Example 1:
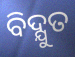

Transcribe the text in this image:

ବିଦ୍ଯୁତ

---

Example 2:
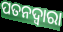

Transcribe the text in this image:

ପତନଦ୍ୱାରା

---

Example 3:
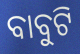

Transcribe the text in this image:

ବାବୁଟି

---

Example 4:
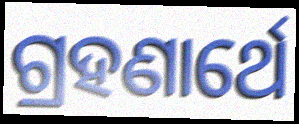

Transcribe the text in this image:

ଗ୍ରହଣାର୍ଥେ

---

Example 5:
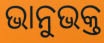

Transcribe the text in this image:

ଭାନୁଭକ୍ତ